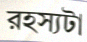
রহস্যটা